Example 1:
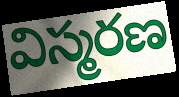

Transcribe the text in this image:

విస్మరణ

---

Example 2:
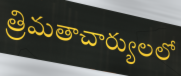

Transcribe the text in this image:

త్రిమతాచార్యులలో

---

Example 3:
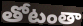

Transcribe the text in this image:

తోటంతా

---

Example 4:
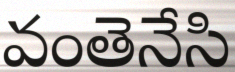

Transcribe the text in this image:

వంతెనేసి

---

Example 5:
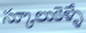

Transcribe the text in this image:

స్కూలుకెళ్ళే